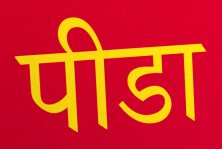
पीडा